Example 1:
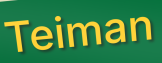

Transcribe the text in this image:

Teiman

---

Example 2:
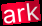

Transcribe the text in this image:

ark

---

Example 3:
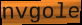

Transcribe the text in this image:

nvgole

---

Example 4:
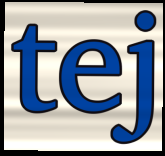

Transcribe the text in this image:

tej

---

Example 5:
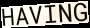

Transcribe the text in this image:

HAVING